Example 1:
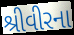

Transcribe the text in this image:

શ્રીવીરના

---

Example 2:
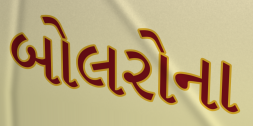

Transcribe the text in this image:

બોલરોના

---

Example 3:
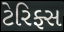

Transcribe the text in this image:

ટેરિફ્સ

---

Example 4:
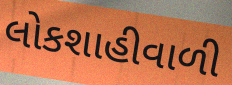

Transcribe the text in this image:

લોકશાહીવાળી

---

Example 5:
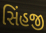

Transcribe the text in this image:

સિંહજી